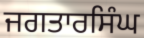
ਜਗਤਾਰਸਿੰਘ